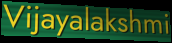
Vijayalakshmi